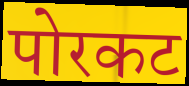
पोरकट